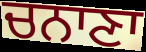
ਚਨਾਣਾ